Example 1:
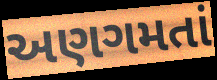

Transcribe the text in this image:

અણગમતાં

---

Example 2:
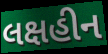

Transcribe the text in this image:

લક્ષહીન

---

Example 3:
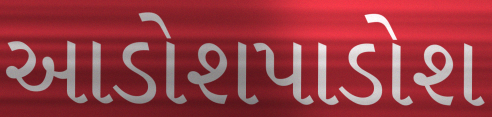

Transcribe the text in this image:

આડોશપાડોશ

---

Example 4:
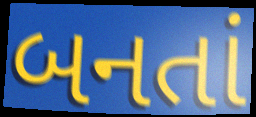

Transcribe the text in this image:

બનતાં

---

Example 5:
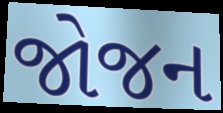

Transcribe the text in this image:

જોજન